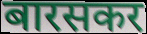
बारसकर